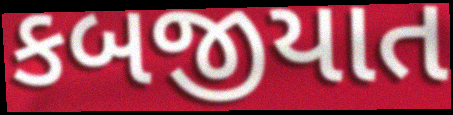
કબજીયાત